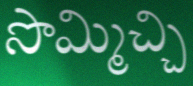
సొమ్మిచ్చి